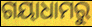
ଗୟାଧାମରୁ